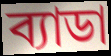
ব্যাডা